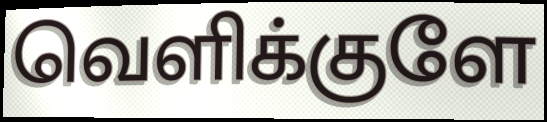
வெளிக்குளே